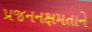
પ્રજનનક્ષમતાને